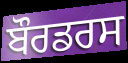
ਬੌਰਡਰਸ